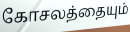
கோசலத்தையும்